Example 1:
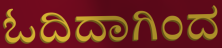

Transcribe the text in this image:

ಓದಿದಾಗಿಂದ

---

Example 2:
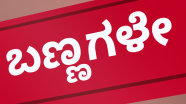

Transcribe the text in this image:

ಬಣ್ಣಗಳೇ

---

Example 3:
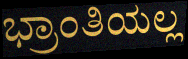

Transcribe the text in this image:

ಭ್ರಾಂತಿಯಲ್ಲ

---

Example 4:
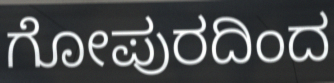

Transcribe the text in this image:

ಗೋಪುರದಿಂದ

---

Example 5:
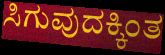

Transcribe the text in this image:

ಸಿಗುವುದಕ್ಕಿಂತ